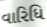
વારિધિ